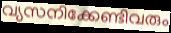
വ്യസനിക്കേണ്ടിവരും